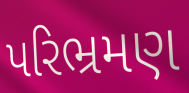
પરિભ્રમણ